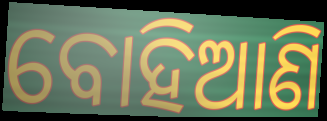
ବୋହିଆଣି